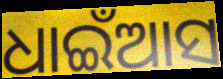
ଧାଇଁଆସ